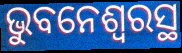
ଭୁବନେଶ୍ଵରସ୍ଥ